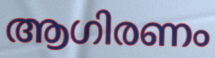
ആഗിരണം